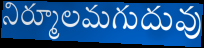
నిర్మూలమగుదువు